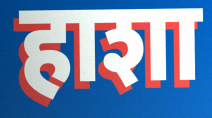
हाशा